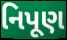
નિપૂણ